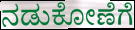
ನಡುಕೋಣೆಗೆ